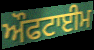
ਔਫਟਾਈਮ